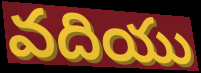
వదియు